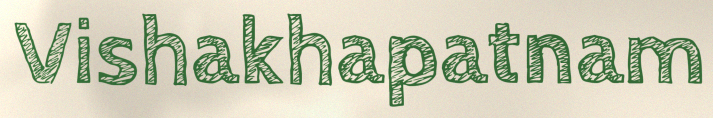
Vishakhapatnam